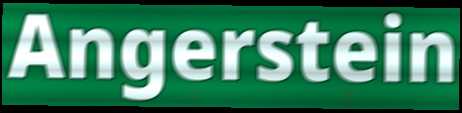
Angerstein